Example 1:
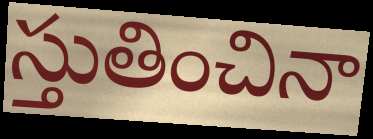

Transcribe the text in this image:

స్తుతించినా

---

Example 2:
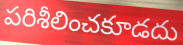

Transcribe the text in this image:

పరిశీలించకూడదు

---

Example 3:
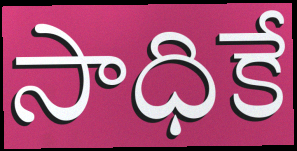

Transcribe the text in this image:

సాధికే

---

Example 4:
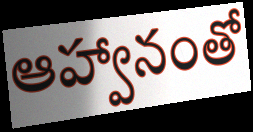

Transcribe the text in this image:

ఆహ్వానంతో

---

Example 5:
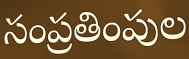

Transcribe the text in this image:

సంప్రతింపుల